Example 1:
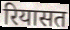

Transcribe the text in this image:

रियासत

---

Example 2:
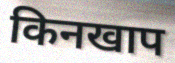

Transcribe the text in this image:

किनखाप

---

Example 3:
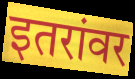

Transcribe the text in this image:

इतरांवर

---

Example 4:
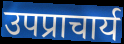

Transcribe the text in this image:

उपप्राचार्य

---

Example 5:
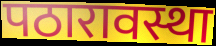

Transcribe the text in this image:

पठारावस्था